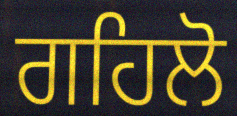
ਗਹਿਲੋ